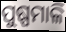
ପୁଷ୍ପମାଳି